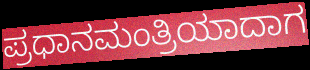
ಪ್ರಧಾನಮಂತ್ರಿಯಾದಾಗ